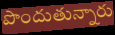
పొందుతున్నారు